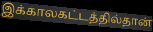
இக்காலகட்டத்தில்தான்